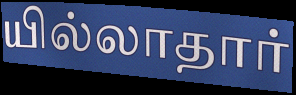
யில்லாதார்